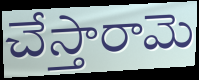
చేస్తారామె